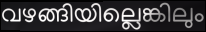
വഴങ്ങിയില്ലെങ്കിലും